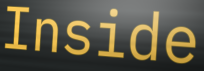
Inside